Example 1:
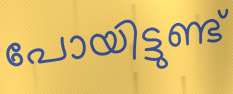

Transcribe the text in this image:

പോയിട്ടുണ്ട്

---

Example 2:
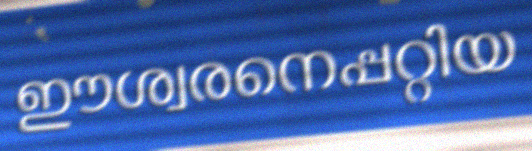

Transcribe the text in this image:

ഈശ്വരനെപ്പറ്റിയ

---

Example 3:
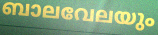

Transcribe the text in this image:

ബാലവേലയും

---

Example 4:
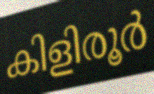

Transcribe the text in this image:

കിളിരൂർ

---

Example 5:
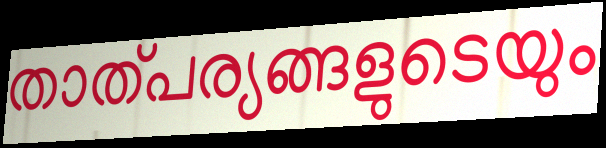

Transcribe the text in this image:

താത്പര്യങ്ങളുടെയും